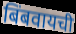
बिंबवायची